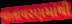
વાતાવરણમાંથી